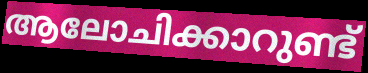
ആലോചിക്കാറുണ്ട്